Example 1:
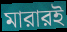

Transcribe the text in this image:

মারারই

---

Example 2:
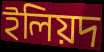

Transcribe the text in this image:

ইলিয়দ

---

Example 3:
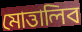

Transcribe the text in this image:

মোত্তালিব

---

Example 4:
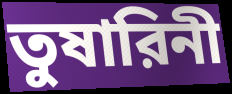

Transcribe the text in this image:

তুষারিনী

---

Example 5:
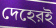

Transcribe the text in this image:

দেহেরই